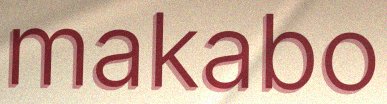
makabo